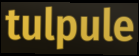
tulpule